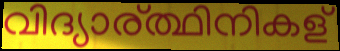
വിദ്യാര്ത്ഥിനികള്